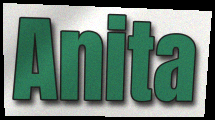
Anita